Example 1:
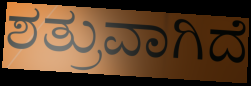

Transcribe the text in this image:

ಶತ್ರುವಾಗಿದೆ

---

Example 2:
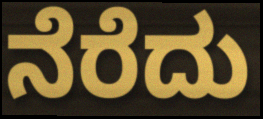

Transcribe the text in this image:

ನೆರೆದು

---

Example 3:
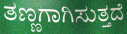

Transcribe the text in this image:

ತಣ್ಣಗಾಗಿಸುತ್ತದೆ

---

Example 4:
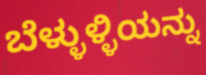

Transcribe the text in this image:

ಬೆಳ್ಳುಳ್ಳಿಯನ್ನು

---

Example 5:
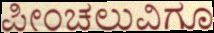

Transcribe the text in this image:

ಪೀಂಚಲುವಿಗೂ